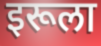
इरूला